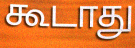
கூடாது